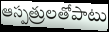
ఆస్పత్రులతోపాటు